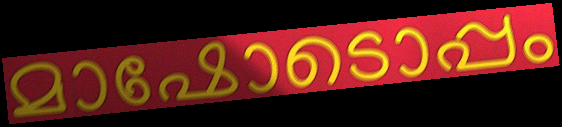
മാഷോടൊപ്പം